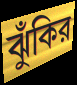
ঝুঁকির